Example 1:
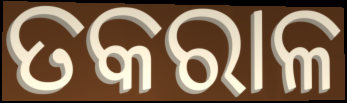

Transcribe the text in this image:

ତକରାଳ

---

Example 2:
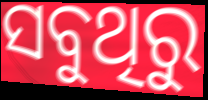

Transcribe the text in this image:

ସବୁଥିରୁ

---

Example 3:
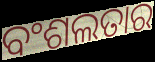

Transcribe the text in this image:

ବଂଶଲତାର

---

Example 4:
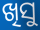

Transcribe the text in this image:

ଖିସୁ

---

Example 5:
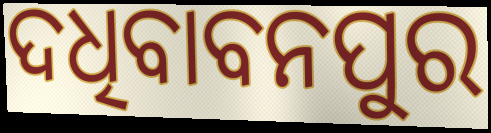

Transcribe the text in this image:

ଦଧିବାବନପୁର